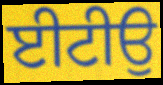
ਈਟੀਉ